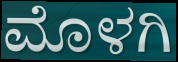
ಮೊಳಗಿ